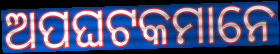
ଅପଘଟକମାନେ